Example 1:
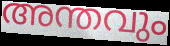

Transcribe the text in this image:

അന്തവും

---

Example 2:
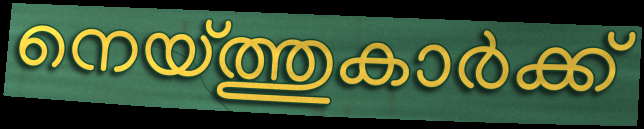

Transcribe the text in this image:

നെയ്ത്തുകാർക്ക്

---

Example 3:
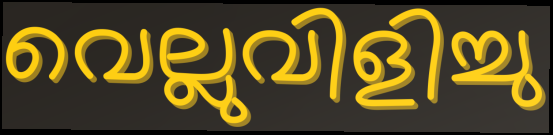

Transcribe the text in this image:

വെല്ലുവിളിച്ചു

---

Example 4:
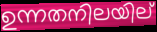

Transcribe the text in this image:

ഉന്നതനിലയില്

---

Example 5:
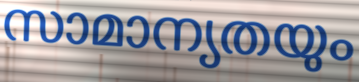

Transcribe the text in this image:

സാമാന്യതയും